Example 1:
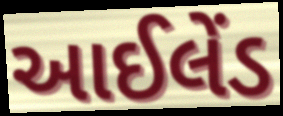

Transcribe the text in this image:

આઈલેંડ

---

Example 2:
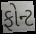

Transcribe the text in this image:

ફોન્ટ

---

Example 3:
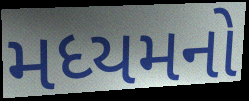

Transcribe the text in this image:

મધ્યમનો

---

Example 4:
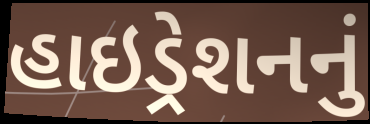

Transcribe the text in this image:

હાઇડ્રેશનનું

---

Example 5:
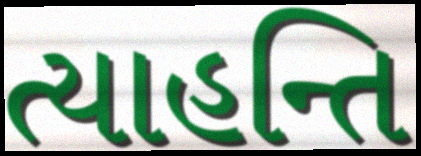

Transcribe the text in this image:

ત્યાહન્તિ